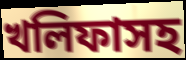
খলিফাসহ